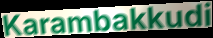
Karambakkudi